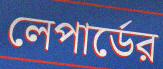
লেপার্ডের